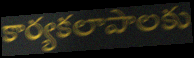
కార్యకలాపాలకు